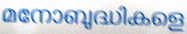
മനോബുദ്ധികളെ